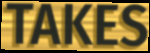
TAKES